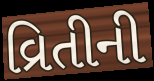
વ્રિતીની